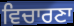
ਵਿਚਾਰਣਾ